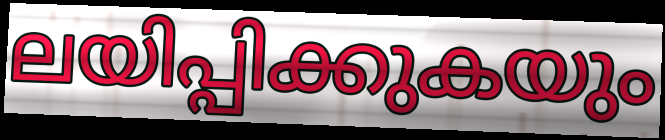
ലയിപ്പിക്കുകയും